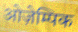
ओज़ेम्पिक